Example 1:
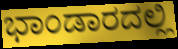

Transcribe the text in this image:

ಭಾಂಡಾರದಲ್ಲಿ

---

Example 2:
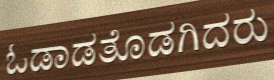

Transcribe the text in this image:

ಓಡಾಡತೊಡಗಿದರು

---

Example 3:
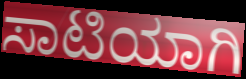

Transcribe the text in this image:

ಸಾಟಿಯಾಗಿ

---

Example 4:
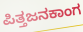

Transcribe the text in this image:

ಪಿತ್ತಜನಕಾಂಗ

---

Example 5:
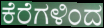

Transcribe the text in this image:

ಕೆರೆಗಳಿಂದ